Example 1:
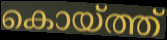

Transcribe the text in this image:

കൊയ്ത്ത്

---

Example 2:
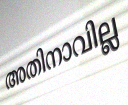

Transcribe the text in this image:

അതിനാവില്ല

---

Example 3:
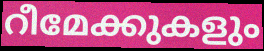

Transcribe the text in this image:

റീമേക്കുകളും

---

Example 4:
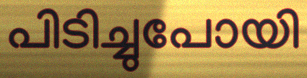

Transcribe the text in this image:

പിടിച്ചുപോയി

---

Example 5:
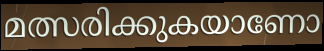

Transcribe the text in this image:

മത്സരിക്കുകയാണോ